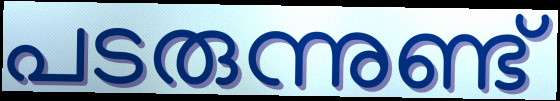
പടരുന്നുണ്ട്